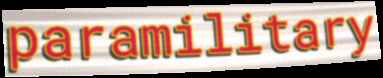
paramilitary